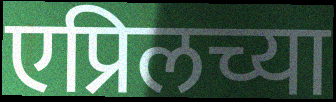
एप्रिलच्या